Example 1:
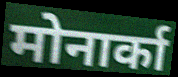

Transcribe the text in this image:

मोनार्का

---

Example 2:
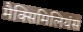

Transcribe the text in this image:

मैक्सिमिलियंस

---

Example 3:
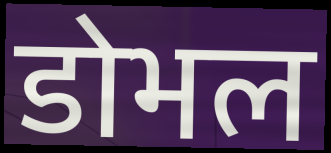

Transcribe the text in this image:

डोभल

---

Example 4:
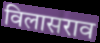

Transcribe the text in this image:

विलासराव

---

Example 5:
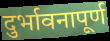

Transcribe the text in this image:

दुर्भावनापूर्ण